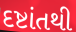
દષ્ટાંતથી